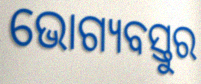
ଭୋଗ୍ୟବସ୍ତୁର